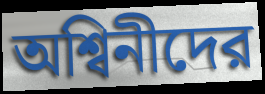
অশ্বিনীদের